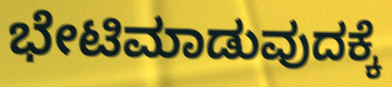
ಭೇಟಿಮಾಡುವುದಕ್ಕೆ